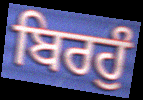
ਬਿਰਹੁੰ